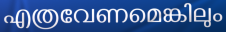
എത്രവേണമെങ്കിലും